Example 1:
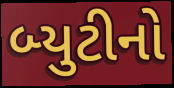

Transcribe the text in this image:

બ્યુટીનો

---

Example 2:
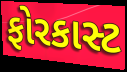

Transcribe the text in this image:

ફોરકાસ્ટ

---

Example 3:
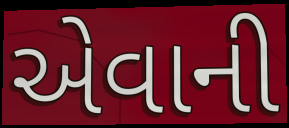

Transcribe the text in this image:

એવાની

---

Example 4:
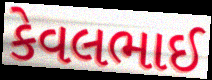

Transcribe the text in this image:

કેવલભાઈ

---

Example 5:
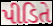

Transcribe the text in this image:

પીડિતે